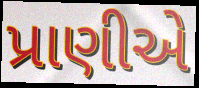
પ્રાણીએ